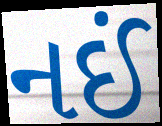
નઈં